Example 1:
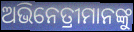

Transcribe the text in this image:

ଅଭିନେତ୍ରୀମାନଙ୍କୁ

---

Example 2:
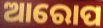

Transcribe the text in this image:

ଆରୋପ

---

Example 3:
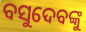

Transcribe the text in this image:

ବସୁଦେବଙ୍କୁ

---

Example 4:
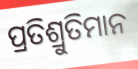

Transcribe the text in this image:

ପ୍ରତିଶ୍ରୁତିମାନ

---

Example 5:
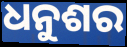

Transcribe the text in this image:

ଧନୁଶର